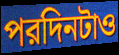
পরদিনটাও